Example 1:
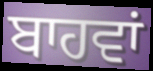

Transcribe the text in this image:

ਬਾਹਵਾਂ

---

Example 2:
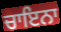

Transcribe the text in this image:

ਚਾਇਨਾ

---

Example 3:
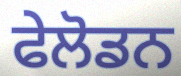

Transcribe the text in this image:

ਫੇਲੋਡਨ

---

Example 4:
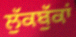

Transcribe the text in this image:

ਲੁੱਕਬੁੱਕਾਂ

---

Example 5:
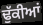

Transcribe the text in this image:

ਢੁੱਕੀਆਂ